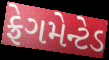
ફ્રેગમેન્ટેડ